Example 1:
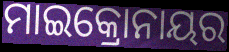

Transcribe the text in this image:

ମାଇକ୍ରୋନାୟର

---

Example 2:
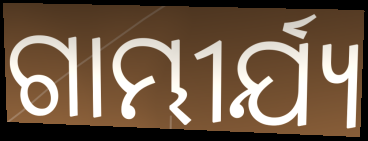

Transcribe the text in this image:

ଗାମ୍ଭୀର୍ଯ୍ୟ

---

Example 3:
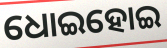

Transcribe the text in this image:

ଧୋଇହୋଇ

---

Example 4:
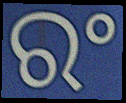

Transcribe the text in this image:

ରଂ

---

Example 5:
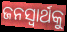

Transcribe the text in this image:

ଜନସ୍ବାର୍ଥକୁ